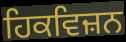
ਹਿਕਵਿਜ਼ਨ